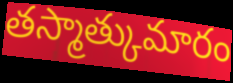
తస్మాత్కుమారం